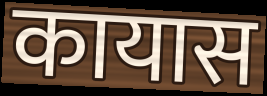
कायास